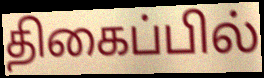
திகைப்பில்